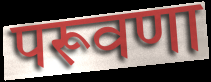
परूवणा